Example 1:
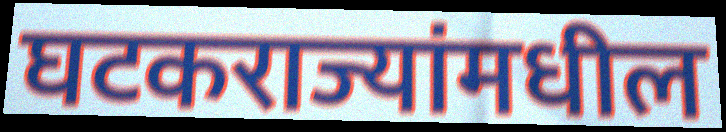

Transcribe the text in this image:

घटकराज्यांमधील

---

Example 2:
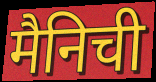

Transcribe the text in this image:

मैनिची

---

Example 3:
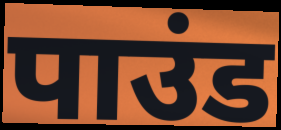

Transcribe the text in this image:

पाउंड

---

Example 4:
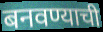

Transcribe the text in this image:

बनवण्याची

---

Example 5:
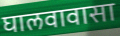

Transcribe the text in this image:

घालवावासा